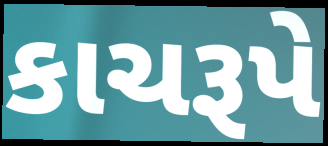
કાચરૂપે